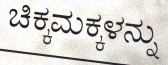
ಚಿಕ್ಕಮಕ್ಕಳನ್ನು